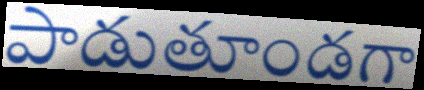
పాడుతూండగా